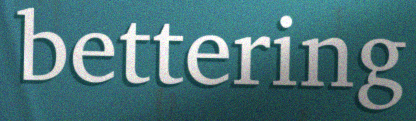
bettering